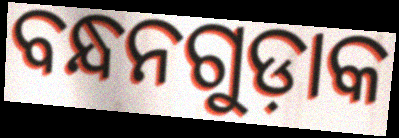
ବନ୍ଧନଗୁଡ଼ାକ